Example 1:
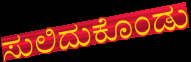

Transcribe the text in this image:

ಸುಲಿದುಕೊಂಡು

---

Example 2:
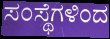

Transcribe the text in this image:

ಸಂಸ್ಥೆಗಳಿಂದ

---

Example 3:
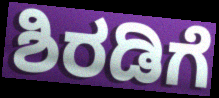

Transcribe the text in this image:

ಶಿರಡಿಗೆ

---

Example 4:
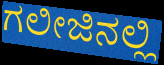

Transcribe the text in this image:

ಗಲೀಜಿನಲ್ಲಿ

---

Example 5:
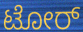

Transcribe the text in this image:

ಟೋರ್